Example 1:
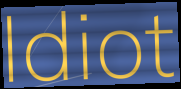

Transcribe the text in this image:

Idiot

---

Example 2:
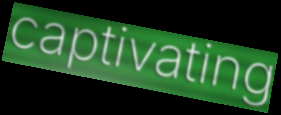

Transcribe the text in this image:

captivating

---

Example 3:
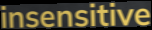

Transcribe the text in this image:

insensitive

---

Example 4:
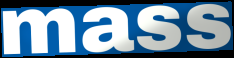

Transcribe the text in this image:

mass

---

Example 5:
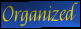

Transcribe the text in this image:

Organized